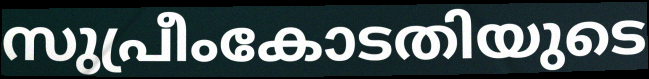
സുപ്രീംകോടതിയുടെ